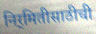
निर्मितीसाठीची